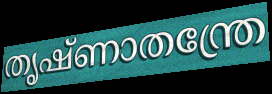
തൃഷ്ണാതന്ത്രേ